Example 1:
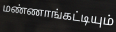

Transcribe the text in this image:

மண்ணாங்கட்டியும்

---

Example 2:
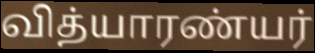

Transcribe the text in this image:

வித்யாரண்யர்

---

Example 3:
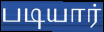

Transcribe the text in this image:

படியார்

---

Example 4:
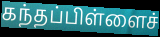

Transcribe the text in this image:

கந்தப்பிள்ளைச்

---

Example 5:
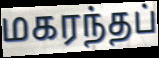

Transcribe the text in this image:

மகரந்தப்